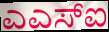
ಎಎಸ್ಐ